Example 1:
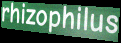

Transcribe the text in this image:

rhizophilus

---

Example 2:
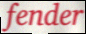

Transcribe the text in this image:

fender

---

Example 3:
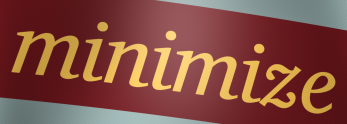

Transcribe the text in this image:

minimize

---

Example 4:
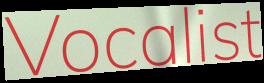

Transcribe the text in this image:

Vocalist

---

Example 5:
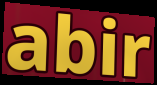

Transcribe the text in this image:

abir